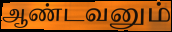
ஆண்டவனும்